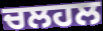
ਚਲਹਲ